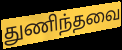
துணிந்தவை